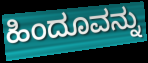
ಹಿಂದೂವನ್ನು